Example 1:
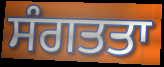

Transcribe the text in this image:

ਸੰਗਤਤਾ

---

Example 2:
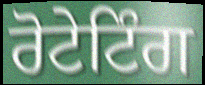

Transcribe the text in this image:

ਰੋਟੇਟਿੰਗ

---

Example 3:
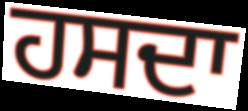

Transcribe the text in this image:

ਹਸਦਾ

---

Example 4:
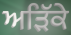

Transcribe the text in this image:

ਅੜਿੱਕੇ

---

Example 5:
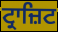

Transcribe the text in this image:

ਟ੍ਰਾਜ਼ਿਟ